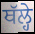
ਥੱਲ੍ਹੇ